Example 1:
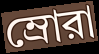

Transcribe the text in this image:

ম্রোরা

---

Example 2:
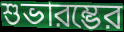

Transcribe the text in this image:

শুভারম্ভের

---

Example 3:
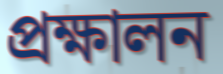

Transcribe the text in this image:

প্রক্ষালন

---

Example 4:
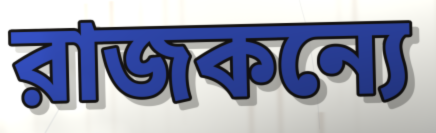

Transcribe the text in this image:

রাজকন্যে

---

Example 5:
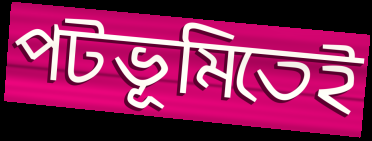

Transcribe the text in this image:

পটভূমিতেই